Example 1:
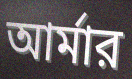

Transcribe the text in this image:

আর্মার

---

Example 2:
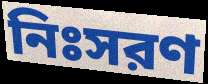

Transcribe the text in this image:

নিঃসরণ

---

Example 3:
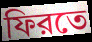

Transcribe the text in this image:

ফিরতে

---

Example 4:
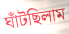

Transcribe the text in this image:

ঘাঁটছিলাম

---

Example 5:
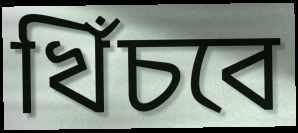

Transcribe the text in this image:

খিঁচবে